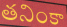
తనింకా